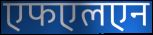
एफएलएन